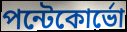
পন্টেকোর্ভো